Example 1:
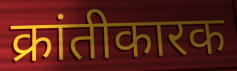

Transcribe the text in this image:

क्रांतीकारक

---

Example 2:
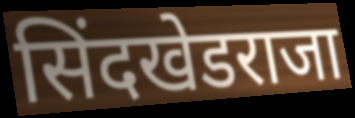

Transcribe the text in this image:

सिंदखेडराजा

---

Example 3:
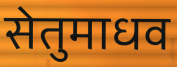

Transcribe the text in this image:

सेतुमाधव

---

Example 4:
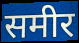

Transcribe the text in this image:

समीर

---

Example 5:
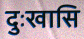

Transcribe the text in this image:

दुःखासि